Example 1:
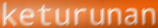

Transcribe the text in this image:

keturunan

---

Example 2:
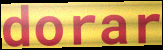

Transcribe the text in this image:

dorar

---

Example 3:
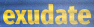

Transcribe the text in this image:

exudate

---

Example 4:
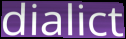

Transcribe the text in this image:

dialict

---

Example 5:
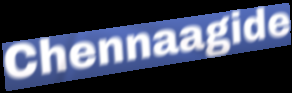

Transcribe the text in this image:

Chennaagide